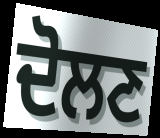
ਦੋਲਣ